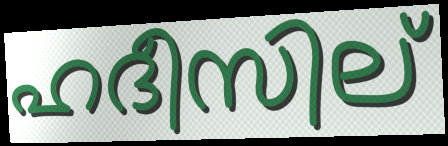
ഹദീസില്